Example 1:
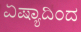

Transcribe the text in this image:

ಏಷ್ಯಾದಿಂದ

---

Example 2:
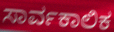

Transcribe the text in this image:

ಸಾರ್ವಕಾಲಿಕ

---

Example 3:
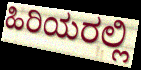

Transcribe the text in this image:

ಹಿರಿಯರಲ್ಲಿ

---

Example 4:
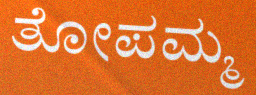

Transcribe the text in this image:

ತೋಪಮ್ಮ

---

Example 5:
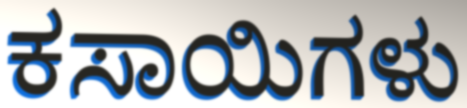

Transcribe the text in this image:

ಕಸಾಯಿಗಳು